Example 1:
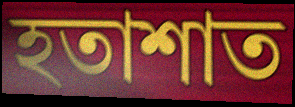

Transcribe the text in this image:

হতাশাত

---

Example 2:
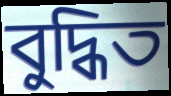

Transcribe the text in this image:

বুদ্ধিত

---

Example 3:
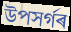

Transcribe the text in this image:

উপসৰ্গৰ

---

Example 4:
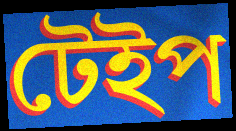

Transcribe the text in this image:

টেইপ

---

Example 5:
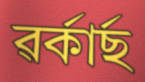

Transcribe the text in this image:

ৱৰ্কাৰ্ছ